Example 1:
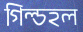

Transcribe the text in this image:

গিল্ডহল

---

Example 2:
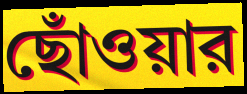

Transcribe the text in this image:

ছোঁওয়ার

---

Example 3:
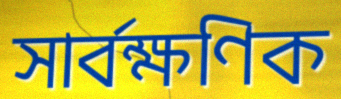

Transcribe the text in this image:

সার্বক্ষণিক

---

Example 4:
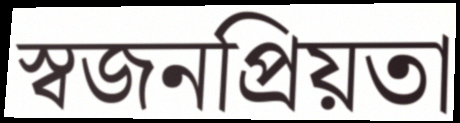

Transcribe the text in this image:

স্বজনপ্রিয়তা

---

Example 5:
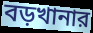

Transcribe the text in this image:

বড়খানার